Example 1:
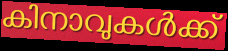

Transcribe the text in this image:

കിനാവുകൾക്ക്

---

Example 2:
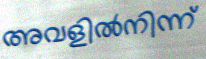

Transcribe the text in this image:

അവളിൽനിന്ന്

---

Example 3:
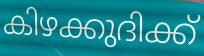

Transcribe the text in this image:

കിഴക്കുദിക്ക്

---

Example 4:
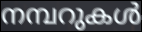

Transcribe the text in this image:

നമ്പറുകൾ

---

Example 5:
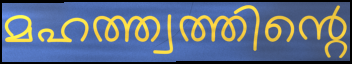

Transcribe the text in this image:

മഹത്ത്വത്തിന്റെ